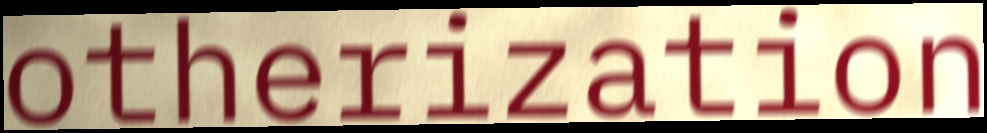
otherization